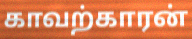
காவற்காரன்